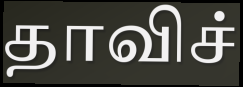
தாவிச்